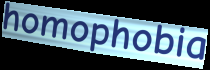
homophobia